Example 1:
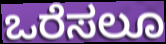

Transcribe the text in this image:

ಒರೆಸಲೂ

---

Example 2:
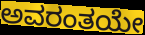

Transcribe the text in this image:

ಅವರಂತಯೇ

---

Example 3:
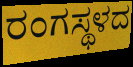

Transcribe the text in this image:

ರಂಗಸ್ಥಳದ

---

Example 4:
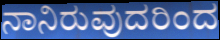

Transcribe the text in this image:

ನಾನಿರುವುದರಿಂದ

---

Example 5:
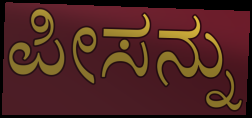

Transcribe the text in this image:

ಪೀಸನ್ನು